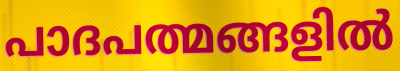
പാദപത്മങ്ങളിൽ